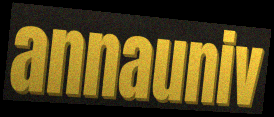
annauniv